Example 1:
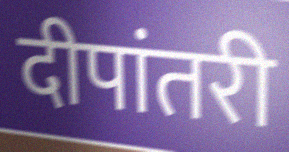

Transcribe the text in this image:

दीपांतरी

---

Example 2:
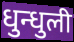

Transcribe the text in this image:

धुन्धुली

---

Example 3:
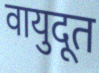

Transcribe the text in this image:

वायुदूत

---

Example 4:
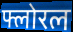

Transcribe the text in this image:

फ्लोरल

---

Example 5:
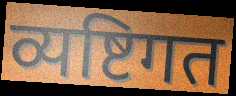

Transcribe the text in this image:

व्यष्टिगत